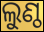
ଲୁଣ୍ଠ